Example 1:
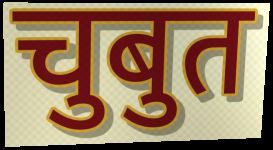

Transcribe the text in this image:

चुबुत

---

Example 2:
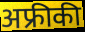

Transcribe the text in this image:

अफ्रीकी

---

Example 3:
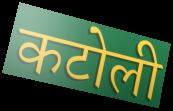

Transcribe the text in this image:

कटोली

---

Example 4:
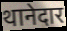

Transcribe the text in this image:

थानेदार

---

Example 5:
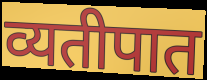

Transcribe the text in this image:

व्यतीपात